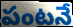
పంటనే